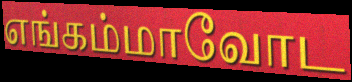
எங்கம்மாவோட